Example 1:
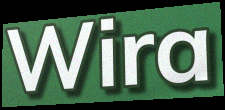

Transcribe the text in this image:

Wira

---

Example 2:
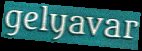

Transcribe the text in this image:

gelyavar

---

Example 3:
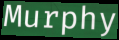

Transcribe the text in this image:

Murphy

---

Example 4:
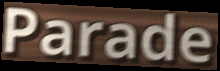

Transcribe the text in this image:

Parade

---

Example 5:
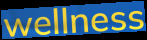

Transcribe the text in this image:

wellness